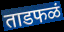
ताडफळं